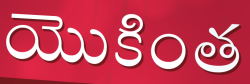
యొకింత